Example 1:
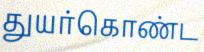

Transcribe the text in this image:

துயர்கொண்ட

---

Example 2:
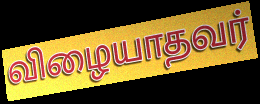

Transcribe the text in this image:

விழையாதவர்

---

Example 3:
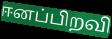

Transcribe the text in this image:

ஈனப்பிறவி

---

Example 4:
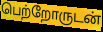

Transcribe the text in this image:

பெற்றோருடன்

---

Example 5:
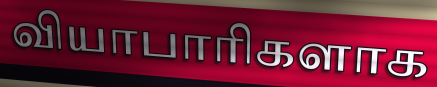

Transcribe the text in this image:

வியாபாரிகளாக